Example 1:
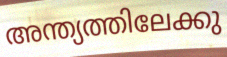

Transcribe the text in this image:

അന്ത്യത്തിലേക്കു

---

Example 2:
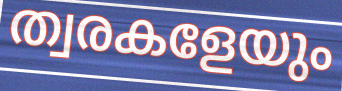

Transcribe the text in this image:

ത്വരകളേയും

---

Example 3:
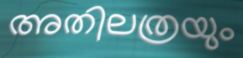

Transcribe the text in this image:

അതിലത്രയും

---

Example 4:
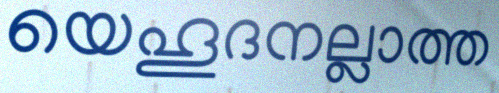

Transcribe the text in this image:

യെഹൂദനല്ലാത്ത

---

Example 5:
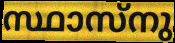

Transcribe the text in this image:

സ്ഥാസ്നു